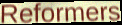
Reformers